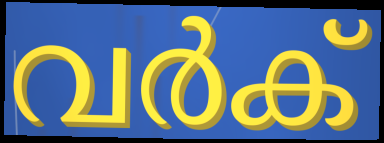
വർക്